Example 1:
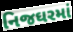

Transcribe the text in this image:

નિજઘરમાં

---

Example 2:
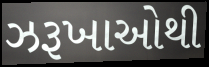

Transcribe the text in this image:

ઝરૂખાઓથી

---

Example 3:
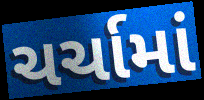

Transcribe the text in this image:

ચર્ચામાં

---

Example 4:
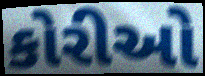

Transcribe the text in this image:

કોરીઓ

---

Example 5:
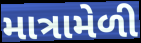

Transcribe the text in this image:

માત્રામેળી